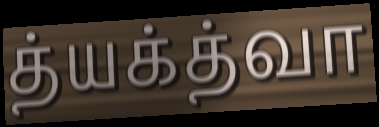
த்யக்த்வா